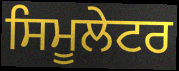
ਸਿਮੂਲੇਟਰ